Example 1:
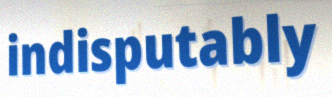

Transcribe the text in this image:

indisputably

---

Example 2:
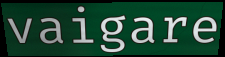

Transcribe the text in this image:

vaigare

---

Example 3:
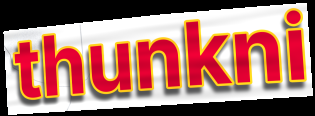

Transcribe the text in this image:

thunkni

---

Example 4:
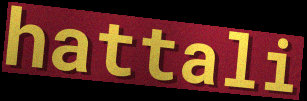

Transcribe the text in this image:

hattali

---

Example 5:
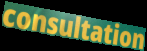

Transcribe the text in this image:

consultation